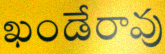
ఖండేరావు